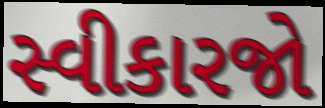
સ્વીકારજો